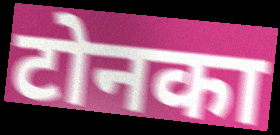
टोनका